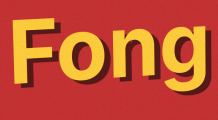
Fong